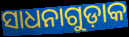
ସାଧନାଗୁଡ଼ାକ